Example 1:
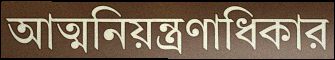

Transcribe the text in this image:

আত্মনিয়ন্ত্রণাধিকার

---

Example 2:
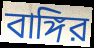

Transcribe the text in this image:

বাঙ্গির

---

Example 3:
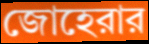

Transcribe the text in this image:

জোহেরার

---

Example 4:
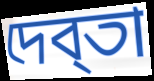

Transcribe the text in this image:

দেব্‌তা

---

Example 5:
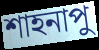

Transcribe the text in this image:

শাহনাপু